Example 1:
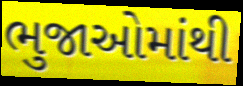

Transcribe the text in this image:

ભુજાઓમાંથી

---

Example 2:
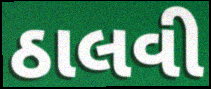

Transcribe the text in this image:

ઠાલવી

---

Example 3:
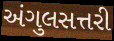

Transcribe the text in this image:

અંગુલસત્તરી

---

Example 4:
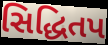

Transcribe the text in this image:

સિદ્ધિતપ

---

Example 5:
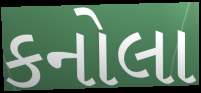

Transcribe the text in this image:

કનોલા